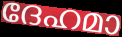
ദേഹമാ